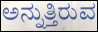
ಅನ್ನುತ್ತಿರುವ